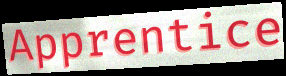
Apprentice